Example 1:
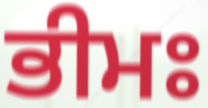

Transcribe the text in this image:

ਭੀਮਃ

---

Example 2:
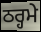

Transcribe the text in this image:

ਠਰ੍ਹਮੇ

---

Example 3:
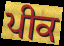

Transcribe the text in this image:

ਪੀਕ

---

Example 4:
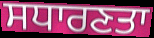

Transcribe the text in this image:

ਸਧਾਰਣਤਾ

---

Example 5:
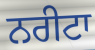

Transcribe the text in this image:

ਨਰੀਟਾ